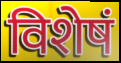
विशेषं